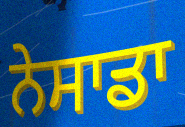
ਨੇਸਾਡਾ